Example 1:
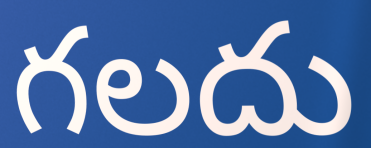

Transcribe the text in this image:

గలదు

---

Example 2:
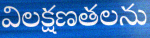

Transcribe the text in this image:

విలక్షణతలను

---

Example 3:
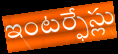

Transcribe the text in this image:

ఇంటర్ఫేస్లు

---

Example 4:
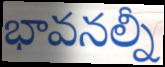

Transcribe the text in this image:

భావనల్నీ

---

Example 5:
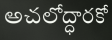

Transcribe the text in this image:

అచలోద్ధారకో